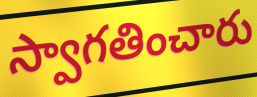
స్వాగతించారు